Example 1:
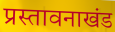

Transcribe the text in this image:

प्रस्तावनाखंड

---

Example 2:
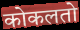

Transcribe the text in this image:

कोकलतो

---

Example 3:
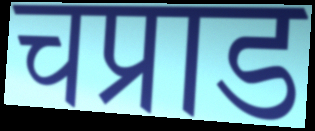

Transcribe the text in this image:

चप्राड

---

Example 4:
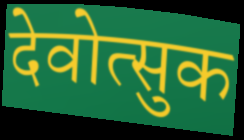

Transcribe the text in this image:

देवोत्सुक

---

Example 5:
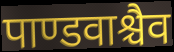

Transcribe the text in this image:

पाण्डवाश्चैव